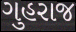
ગુહરાજ